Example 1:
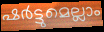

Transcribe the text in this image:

ഷർട്ടുമെല്ലാം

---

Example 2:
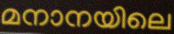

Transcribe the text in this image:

മനാനയിലെ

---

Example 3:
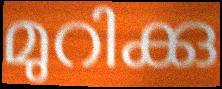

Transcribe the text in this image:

മുറിക്കു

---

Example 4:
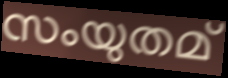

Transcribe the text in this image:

സംയുതമ്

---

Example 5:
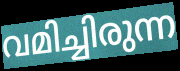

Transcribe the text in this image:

വമിച്ചിരുന്ന